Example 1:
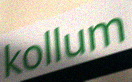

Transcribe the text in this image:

kollum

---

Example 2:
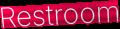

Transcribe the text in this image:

Restroom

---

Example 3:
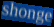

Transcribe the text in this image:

shonge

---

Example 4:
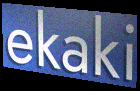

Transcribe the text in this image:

ekaki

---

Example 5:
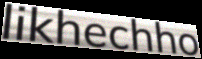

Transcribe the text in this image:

likhechho